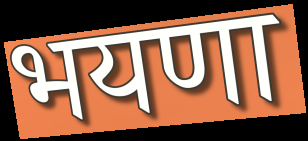
भयणा